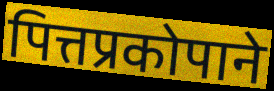
पित्तप्रकोपाने